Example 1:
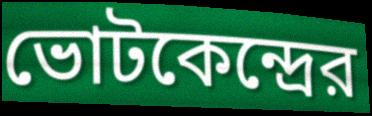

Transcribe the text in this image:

ভোটকেন্দ্রের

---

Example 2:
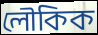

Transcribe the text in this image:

লৌকিক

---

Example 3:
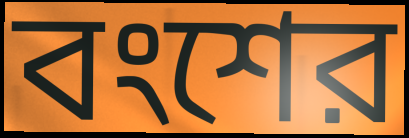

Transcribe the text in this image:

বংশের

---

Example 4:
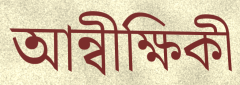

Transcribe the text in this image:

আন্বীক্ষিকী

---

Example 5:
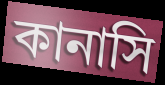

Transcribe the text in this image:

কানাসি